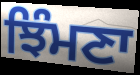
ਝਿੰਮਣਾ